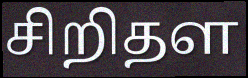
சிறிதள